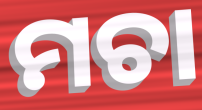
ମଚା